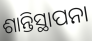
ଶାନ୍ତିସ୍ଥାପନା